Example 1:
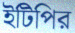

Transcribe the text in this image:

ইটিপির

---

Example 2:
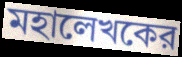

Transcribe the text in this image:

মহালেখকের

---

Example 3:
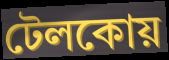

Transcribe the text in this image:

টেলকোয়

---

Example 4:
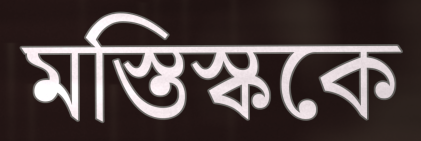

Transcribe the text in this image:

মস্তিস্ককে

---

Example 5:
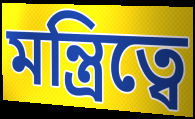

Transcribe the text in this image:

মন্ত্রিত্বে